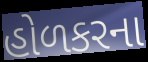
હોળકરના